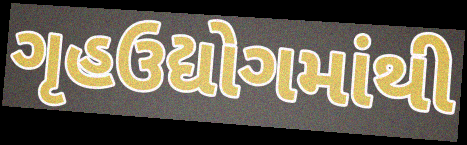
ગૃહઉદ્યોગમાંથી